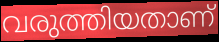
വരുത്തിയതാണ്